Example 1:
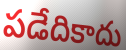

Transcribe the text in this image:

పడేదికాదు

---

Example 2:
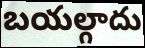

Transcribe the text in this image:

బయల్గాదు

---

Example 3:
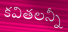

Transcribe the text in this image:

కవితలన్నీ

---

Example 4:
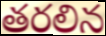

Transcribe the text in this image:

తరలిన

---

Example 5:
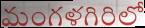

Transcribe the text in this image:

మంగళగిరిలో